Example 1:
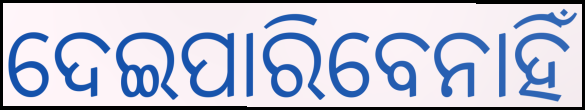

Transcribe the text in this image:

ଦେଇପାରିବେନାହିଁ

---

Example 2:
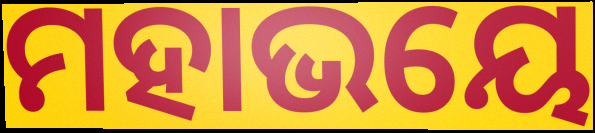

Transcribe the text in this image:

ମହାଭୟେ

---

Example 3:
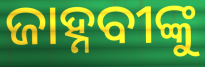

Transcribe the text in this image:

ଜାହ୍ନବୀଙ୍କୁ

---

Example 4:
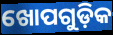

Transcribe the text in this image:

ଖୋପଗୁଡ଼ିକ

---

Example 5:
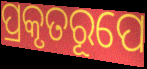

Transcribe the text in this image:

ପ୍ରକୃତରୂପେ